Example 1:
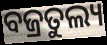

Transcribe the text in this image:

ବଜ୍ରତୁଲ୍ୟ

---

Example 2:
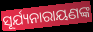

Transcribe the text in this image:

ସୂର୍ଯ୍ୟନାରାୟଣଙ୍କ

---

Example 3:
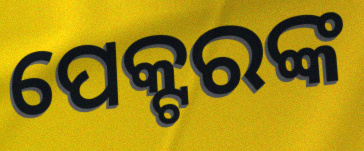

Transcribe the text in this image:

ପେକ୍ଟରଙ୍କ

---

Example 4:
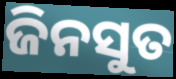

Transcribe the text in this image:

ଜିନସୁତ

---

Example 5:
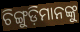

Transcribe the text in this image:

ଚିଙ୍ଗୁଡ଼ିମାନଙ୍କୁ